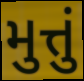
મુત્તું